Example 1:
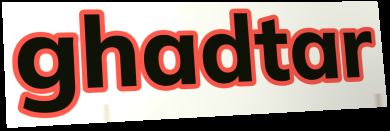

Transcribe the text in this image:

ghadtar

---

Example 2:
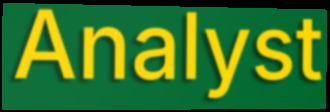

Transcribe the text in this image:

Analyst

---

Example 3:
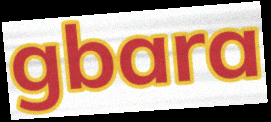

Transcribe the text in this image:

gbara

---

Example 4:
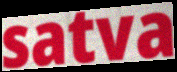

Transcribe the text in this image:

satva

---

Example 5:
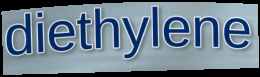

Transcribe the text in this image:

diethylene